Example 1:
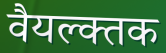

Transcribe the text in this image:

वैयल्क्तक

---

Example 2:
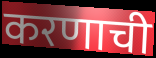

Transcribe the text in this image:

करणाची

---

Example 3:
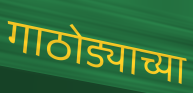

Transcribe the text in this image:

गाठोड्याच्या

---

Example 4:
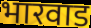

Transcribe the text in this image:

भारवाड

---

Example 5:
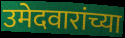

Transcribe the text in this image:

उमेदवारांच्या